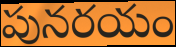
పునరయం